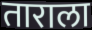
ताराला